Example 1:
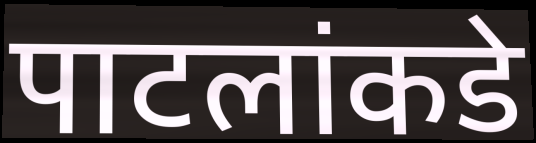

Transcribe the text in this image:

पाटलांकडे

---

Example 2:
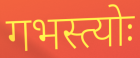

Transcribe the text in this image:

गभस्त्योः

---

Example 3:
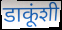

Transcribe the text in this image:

डाकूंशी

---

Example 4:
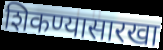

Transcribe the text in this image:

शिकण्यासारखा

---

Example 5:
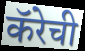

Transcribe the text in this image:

कॅरेची